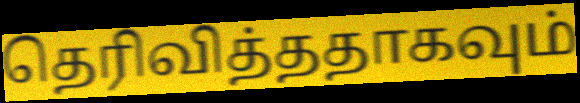
தெரிவித்ததாகவும்